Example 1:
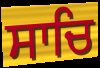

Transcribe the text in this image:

ਸਾਚਿ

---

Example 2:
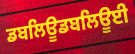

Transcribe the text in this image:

ਡਬਲਿਊਡਬਲਿਊਈ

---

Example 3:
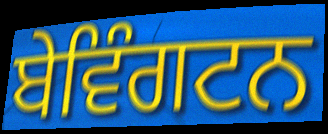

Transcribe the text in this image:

ਬੇਵਿੰਗਟਨ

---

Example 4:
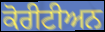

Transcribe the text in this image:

ਕੋਰੀਟੀਅਨ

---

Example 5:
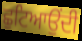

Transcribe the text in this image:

ਛੁਟਿਆਉਂਦੀ